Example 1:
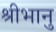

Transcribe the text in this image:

श्रीभानु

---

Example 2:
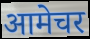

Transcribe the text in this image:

आमेचर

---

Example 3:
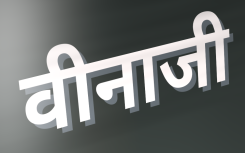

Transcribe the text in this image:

वीनाजी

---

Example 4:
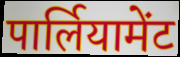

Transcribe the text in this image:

पार्लियामेंट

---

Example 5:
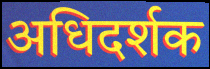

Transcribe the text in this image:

अधिदर्शक